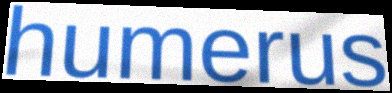
humerus